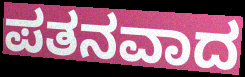
ಪತನವಾದ